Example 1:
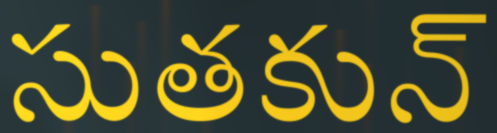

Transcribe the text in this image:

సుతకున్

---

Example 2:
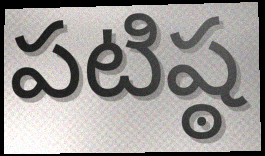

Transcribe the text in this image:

పటిష్ఠ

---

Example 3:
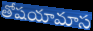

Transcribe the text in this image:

తోషయామాస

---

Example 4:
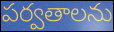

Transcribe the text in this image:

పర్వతాలను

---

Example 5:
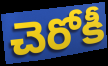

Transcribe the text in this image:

చెరోకీ